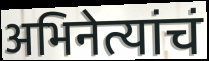
अभिनेत्यांचं